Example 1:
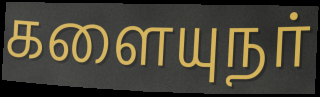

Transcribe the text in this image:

களையுநர்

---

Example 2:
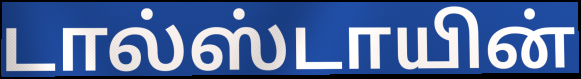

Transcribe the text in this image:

டால்ஸ்டாயின்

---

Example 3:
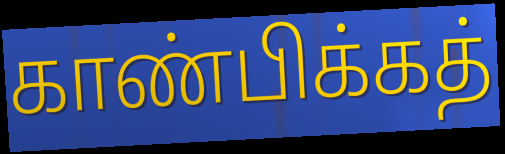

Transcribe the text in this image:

காண்பிக்கத்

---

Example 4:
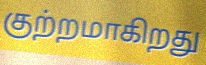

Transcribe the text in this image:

குற்றமாகிறது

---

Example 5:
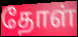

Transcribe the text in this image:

தோள்